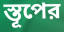
স্তূপের